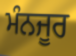
ਮੰਨਜੂਰ